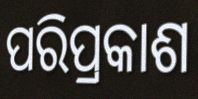
ପରିପ୍ରକାଶ